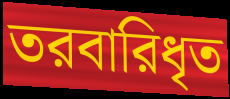
তরবারিধৃত